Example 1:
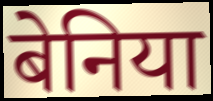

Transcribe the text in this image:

बेनिया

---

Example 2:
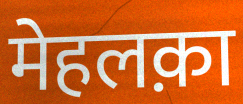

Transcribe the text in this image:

मेहलक़ा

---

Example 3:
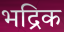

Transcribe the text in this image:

भद्रिक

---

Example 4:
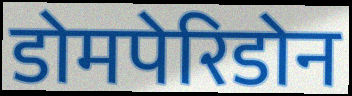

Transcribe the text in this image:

डोमपेरिडोन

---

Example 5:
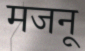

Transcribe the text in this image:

मजनू